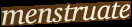
menstruate